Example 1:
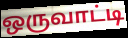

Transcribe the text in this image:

ஒருவாட்டி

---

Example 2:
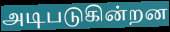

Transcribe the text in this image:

அடிபடுகின்றன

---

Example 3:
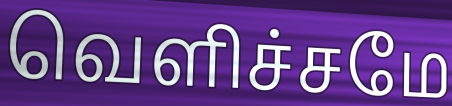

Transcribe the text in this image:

வெளிச்சமே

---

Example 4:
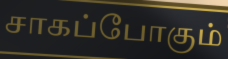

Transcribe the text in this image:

சாகப்போகும்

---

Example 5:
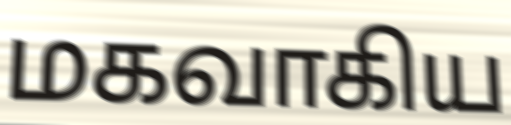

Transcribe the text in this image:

மகவாகிய